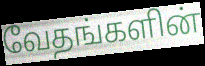
வேதங்களின்